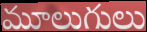
మూలుగులు